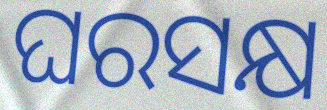
ଘରସକ୍ଷ